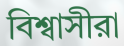
বিশ্বাসীরা